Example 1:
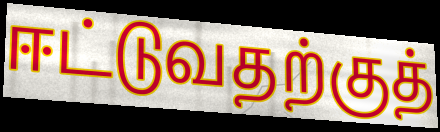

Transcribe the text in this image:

ஈட்டுவதற்குத்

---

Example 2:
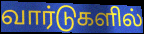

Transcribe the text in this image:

வார்டுகளில்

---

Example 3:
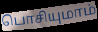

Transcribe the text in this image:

பொசியுமாம்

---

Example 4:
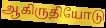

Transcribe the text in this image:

ஆகிருதியோடு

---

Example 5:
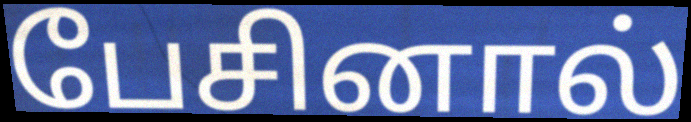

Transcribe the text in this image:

பேசினால்